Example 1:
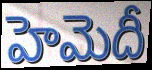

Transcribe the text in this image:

హెమెదీ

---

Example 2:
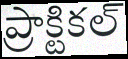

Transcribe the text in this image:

ప్రాక్టికల్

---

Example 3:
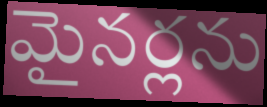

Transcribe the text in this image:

మైనర్లను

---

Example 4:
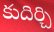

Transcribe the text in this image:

కుదిర్చి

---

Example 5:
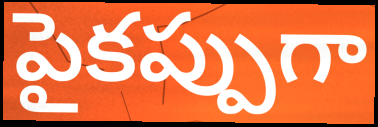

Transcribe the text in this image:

పైకప్పుగా